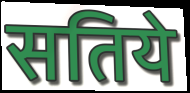
सतिये